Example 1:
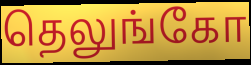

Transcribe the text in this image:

தெலுங்கோ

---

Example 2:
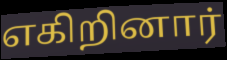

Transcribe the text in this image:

எகிறினார்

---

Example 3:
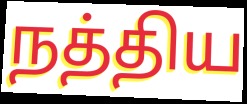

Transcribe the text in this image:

நத்திய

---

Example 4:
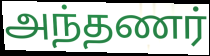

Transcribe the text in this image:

அந்தணர்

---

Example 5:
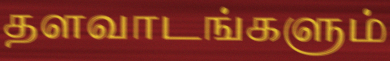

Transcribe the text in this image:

தளவாடங்களும்